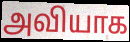
அவியாக